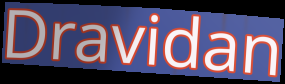
Dravidan